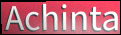
Achinta